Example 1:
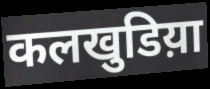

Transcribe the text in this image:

कलखुडिय़ा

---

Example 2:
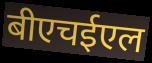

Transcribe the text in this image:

बीएचईएल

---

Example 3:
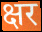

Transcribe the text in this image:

क्षर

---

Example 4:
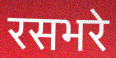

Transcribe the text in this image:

रसभरे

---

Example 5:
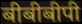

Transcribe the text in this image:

बीबीबीपी